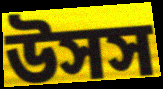
উসস